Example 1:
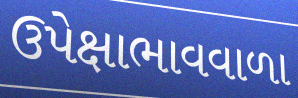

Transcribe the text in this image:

ઉપેક્ષાભાવવાળા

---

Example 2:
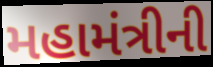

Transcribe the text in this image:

મહામંત્રીની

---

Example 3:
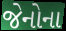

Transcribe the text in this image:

જેનોના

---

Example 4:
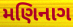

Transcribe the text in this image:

મણિનાગ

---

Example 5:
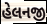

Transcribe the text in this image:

હેલનજી